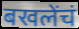
बखलेंचं